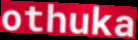
othuka